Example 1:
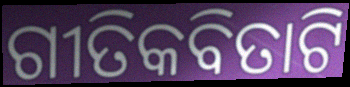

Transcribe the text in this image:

ଗୀତିକବିତାଟି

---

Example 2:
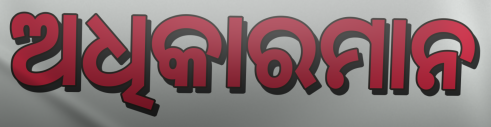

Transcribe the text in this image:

ଅଧିକାରମାନ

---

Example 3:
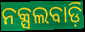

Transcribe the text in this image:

ନକ୍ସଲବାଡ଼ି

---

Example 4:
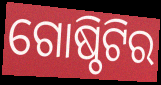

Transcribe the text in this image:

ଗୋଷ୍ଠିଟିର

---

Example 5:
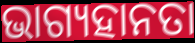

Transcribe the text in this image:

ଭାଗ୍ୟହାନତା